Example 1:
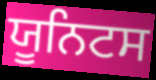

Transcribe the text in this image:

ਯੂਨਿਟਸ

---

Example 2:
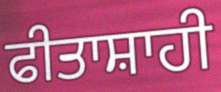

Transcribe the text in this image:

ਫੀਤਾਸ਼ਾਹੀ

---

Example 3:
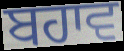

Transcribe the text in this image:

ਬਹਾਵ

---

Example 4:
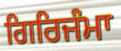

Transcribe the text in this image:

ਗਿਰਿਜੰਮਾ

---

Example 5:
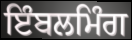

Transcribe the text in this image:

ਇੰਬਲਮਿੰਗ